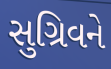
સુગ્રિવને